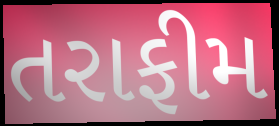
તરાફીમ